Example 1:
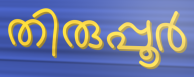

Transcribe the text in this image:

തിരുപ്പൂർ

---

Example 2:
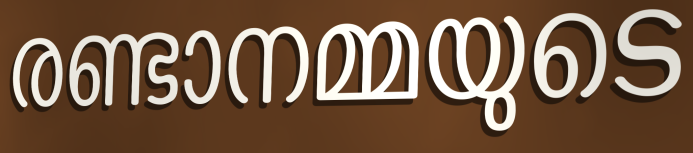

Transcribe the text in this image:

രണ്ടാനമ്മയുടെ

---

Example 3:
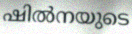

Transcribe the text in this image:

ഷിൽനയുടെ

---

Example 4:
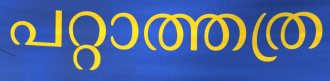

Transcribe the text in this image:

പറ്റാത്തത്ര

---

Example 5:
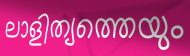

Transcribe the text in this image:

ലാളിത്യത്തെയും